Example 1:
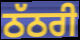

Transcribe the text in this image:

ਠੱਠਰੀ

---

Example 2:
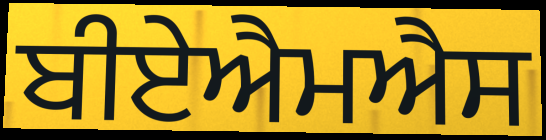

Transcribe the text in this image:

ਬੀਏਐਮਐਸ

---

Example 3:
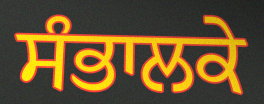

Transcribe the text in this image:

ਸੰਭਾਲਕੇ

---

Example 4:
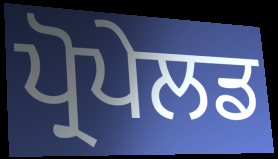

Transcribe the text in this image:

ਪ੍ਰੋਪੇਲਡ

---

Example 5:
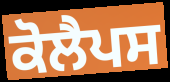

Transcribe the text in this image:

ਕੋਲੈਪਸ